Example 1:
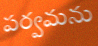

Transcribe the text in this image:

పర్వమను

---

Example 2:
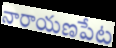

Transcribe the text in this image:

నారాయణపేట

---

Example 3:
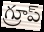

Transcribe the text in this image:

గ్రూప్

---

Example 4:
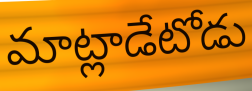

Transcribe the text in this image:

మాట్లాడేటోడు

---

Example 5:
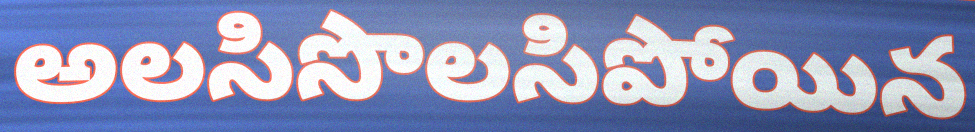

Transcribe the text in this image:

అలసిసొలసిపోయిన